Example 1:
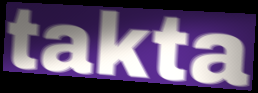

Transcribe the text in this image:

takta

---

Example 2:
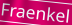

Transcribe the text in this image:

Fraenkel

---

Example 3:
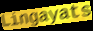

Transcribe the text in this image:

Lingayats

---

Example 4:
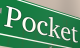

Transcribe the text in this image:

Pocket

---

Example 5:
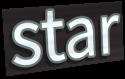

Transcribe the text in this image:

star